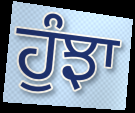
ਹੁੰਝਾ